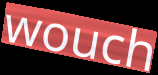
wouch